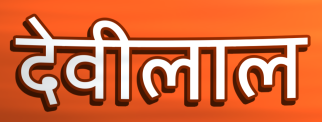
देवीलाल